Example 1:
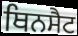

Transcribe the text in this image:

ਥਿਨਸੈਟ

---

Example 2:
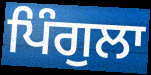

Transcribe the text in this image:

ਪਿੰਗੁਲਾ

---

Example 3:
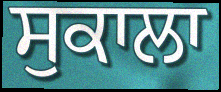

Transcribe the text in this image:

ਸੁਕਾਲਾ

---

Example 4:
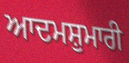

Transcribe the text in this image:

ਆਦਮਸ਼ੁਮਾਰੀ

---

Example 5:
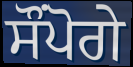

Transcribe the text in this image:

ਸੌਂਪੋਗੇ